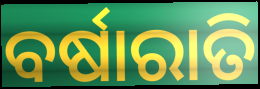
ବର୍ଷାରାତି